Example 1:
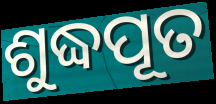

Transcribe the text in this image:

ଶୁଦ୍ଧପୂତ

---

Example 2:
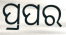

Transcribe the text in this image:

ପ୍ରପର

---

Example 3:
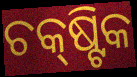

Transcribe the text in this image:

ଚକ୍‌ଷ୍ଟିକ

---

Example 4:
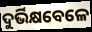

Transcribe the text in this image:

ଦୁର୍ଭିକ୍ଷବେଳେ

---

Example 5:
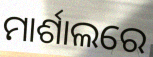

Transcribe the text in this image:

ମାର୍ଶାଲରେ